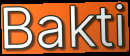
Bakti